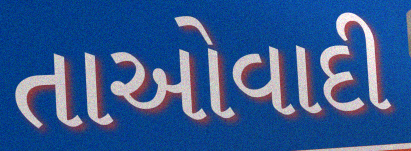
તાઓવાદી